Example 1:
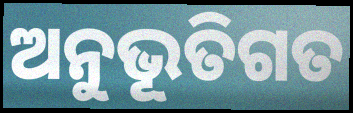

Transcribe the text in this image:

ଅନୁଭୂତିଗତ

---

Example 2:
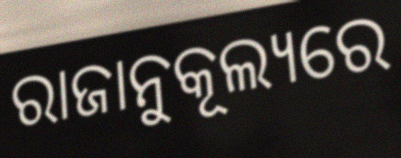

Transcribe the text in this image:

ରାଜାନୁକୂଲ୍ୟରେ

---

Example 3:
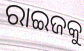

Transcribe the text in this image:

ରାଇଜକୁ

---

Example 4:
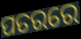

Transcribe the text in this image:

ପତରରେ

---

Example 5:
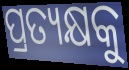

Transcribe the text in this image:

ପ୍ରତ୍ୟକ୍ଷକୁ